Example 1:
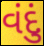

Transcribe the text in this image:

વંદું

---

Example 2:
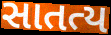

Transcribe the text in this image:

સાતત્ય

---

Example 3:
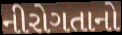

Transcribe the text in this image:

નીરોગતાનો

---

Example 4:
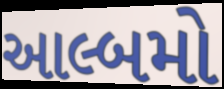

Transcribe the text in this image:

આલ્બમો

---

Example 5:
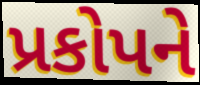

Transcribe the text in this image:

પ્રકોપને